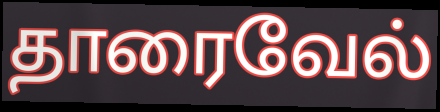
தாரைவேல்